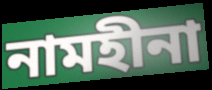
নামহীনা